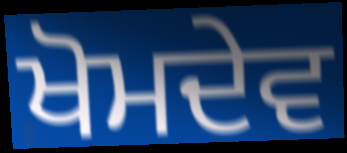
ਖੋਮਦੇਵ